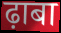
ढ़ाबा